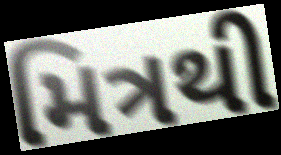
મિત્રથી